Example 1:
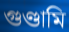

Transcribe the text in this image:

গুণ্ডামি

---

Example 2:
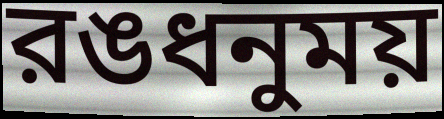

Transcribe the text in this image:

রঙধনুময়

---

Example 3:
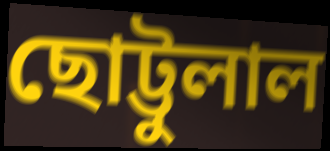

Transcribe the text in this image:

ছোট্টুলাল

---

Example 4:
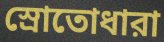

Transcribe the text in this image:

স্রোতোধারা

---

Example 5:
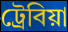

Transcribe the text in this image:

ট্রেবিয়া